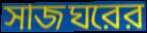
সাজঘরের